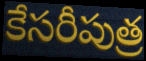
కేసరీపుత్ర